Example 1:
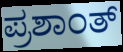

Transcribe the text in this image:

ಪ್ರಶಾಂತ್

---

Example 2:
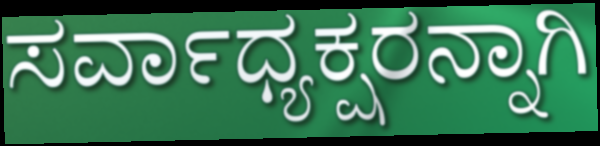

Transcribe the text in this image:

ಸರ್ವಾಧ್ಯಕ್ಷರನ್ನಾಗಿ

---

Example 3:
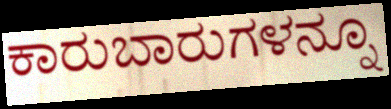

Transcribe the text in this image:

ಕಾರುಬಾರುಗಳನ್ನೂ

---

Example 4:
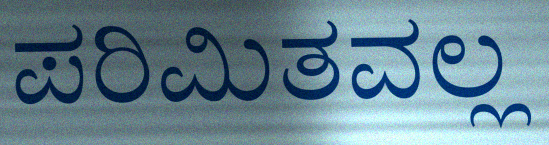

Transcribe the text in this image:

ಪರಿಮಿತವಲ್ಲ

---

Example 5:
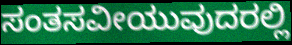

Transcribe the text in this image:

ಸಂತಸವೀಯುವುದರಲ್ಲಿ